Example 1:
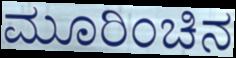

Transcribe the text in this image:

ಮೂರಿಂಚಿನ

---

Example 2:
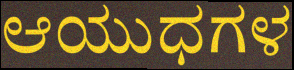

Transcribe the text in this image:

ಆಯುಧಗಳ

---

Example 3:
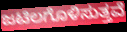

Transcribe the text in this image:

ಜಟಿಲಗೊಳಿಸುತ್ತವೆ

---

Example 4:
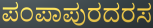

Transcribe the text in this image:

ಪಂಪಾಪುರದರಸ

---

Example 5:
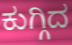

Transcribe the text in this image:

ಕುಗ್ಗಿದ